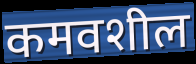
कमवशील